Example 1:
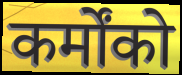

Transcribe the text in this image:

कर्मोंको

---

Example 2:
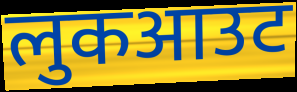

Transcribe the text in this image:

लुकआउट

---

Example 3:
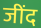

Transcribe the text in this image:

जींद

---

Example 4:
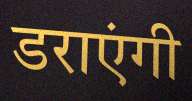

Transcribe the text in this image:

डराएंगी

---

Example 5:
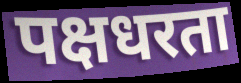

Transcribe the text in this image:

पक्षधरता